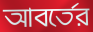
আবর্তের